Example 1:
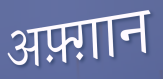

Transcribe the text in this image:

अफ़्ग़ान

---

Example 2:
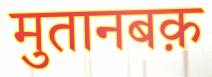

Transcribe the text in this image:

मुतानबक़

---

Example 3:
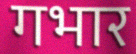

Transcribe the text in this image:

गभार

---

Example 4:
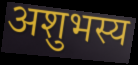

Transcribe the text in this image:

अशुभस्य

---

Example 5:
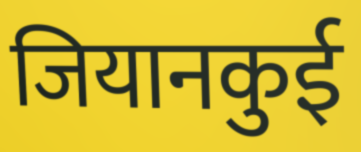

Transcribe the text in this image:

जियानकुई